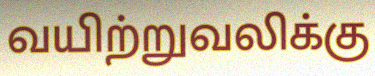
வயிற்றுவலிக்கு